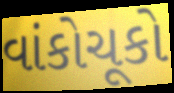
વાંકોચૂકો